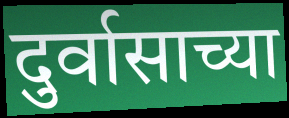
दुर्वासाच्या